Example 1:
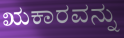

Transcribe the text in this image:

ಋಕಾರವನ್ನು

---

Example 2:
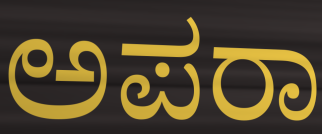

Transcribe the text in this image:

ಅಪರಾ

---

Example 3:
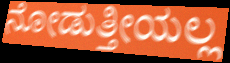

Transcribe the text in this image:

ನೋಡುತ್ತೀಯಲ್ಲ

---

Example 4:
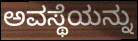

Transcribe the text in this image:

ಅವಸ್ಥೆಯನ್ನು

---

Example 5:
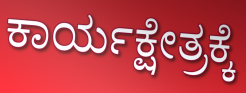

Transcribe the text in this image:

ಕಾರ್ಯಕ್ಷೇತ್ರಕ್ಕೆ